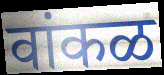
वांकळ